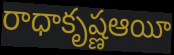
రాధాకృష్ణఆయీ